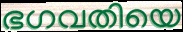
ഭഗവതിയെ